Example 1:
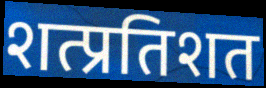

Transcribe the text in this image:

शत्प्रतिशत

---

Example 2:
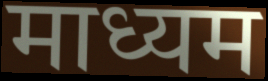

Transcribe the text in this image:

माध्यम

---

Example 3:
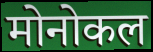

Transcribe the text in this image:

मोनोकल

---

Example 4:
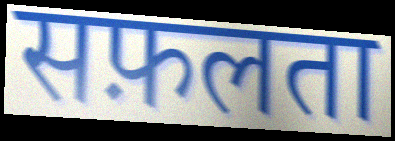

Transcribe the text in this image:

सफ़लता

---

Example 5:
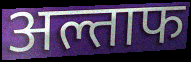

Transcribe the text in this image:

अल्ताफ